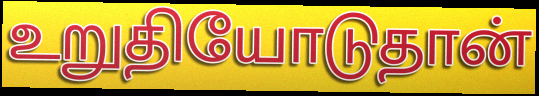
உறுதியோடுதான்